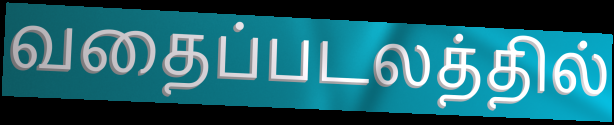
வதைப்படலத்தில்